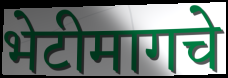
भेटीमागचे